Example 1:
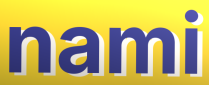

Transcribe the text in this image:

nami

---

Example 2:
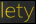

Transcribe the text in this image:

lety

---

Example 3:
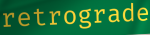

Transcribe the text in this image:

retrograde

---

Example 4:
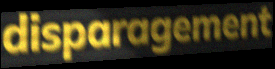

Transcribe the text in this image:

disparagement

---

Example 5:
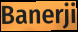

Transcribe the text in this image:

Banerji